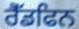
ਰੈੱਡਫਿਨ